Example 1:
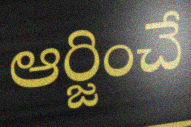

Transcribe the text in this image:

ఆర్జించే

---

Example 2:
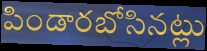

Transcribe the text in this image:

పిండారబోసినట్లు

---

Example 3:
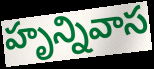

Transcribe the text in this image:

హృన్నివాస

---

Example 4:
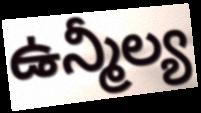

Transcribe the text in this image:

ఉన్మీల్య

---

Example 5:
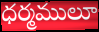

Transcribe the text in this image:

ధర్మములూ